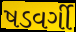
ષડવર્ગી